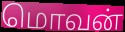
மொவன்